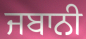
ਜਬਾਨੀ